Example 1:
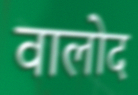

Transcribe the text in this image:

वालोद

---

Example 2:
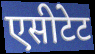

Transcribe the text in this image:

एसीटेट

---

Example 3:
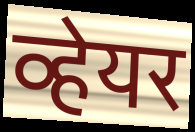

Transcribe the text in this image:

व्हेयर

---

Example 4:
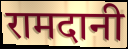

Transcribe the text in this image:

रामदानी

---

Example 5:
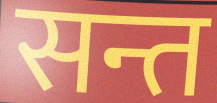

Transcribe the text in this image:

सन्‍त